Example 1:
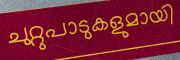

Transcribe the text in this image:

ചുറ്റുപാടുകളുമായി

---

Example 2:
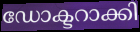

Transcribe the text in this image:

ഡോക്ടറാക്കി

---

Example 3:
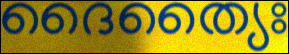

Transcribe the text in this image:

ദൈത്യൈഃ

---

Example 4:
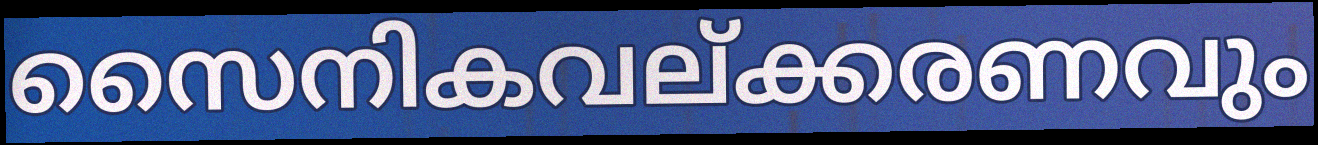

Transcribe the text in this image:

സൈനികവല്ക്കരണവും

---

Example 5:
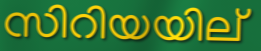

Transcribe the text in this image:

സിറിയയില്